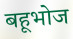
बहूभोज